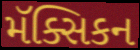
મૅક્સિકન